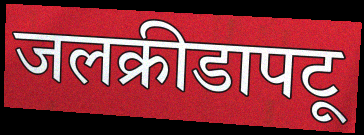
जलक्रीडापटू